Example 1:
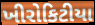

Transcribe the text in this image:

ખીરોકિટીયા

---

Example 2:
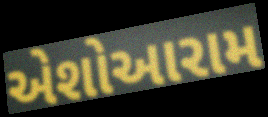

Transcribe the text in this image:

એશોઆરામ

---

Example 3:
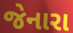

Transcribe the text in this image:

જેનારા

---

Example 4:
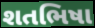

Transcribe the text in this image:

શતભિષા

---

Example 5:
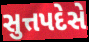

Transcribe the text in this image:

સુત્તપદેસે